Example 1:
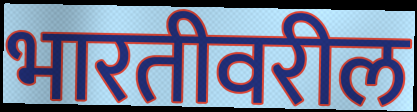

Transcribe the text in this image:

भारतीवरील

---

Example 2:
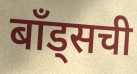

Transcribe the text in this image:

बॉंड्सची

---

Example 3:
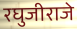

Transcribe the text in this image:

रघुजीराजे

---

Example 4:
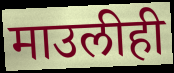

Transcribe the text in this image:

माउलीही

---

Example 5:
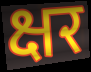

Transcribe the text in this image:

क्षर